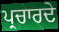
ਪ੍ਰਚਾਰਦੇ